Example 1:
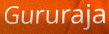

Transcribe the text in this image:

Gururaja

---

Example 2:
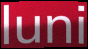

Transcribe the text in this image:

luni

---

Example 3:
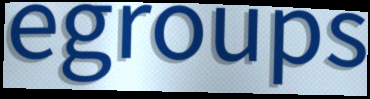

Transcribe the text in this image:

egroups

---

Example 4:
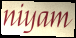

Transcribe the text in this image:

niyam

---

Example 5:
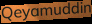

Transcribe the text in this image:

Qeyamuddin